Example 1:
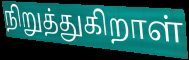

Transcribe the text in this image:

நிறுத்துகிறாள்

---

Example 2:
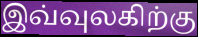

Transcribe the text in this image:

இவ்வுலகிற்கு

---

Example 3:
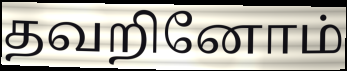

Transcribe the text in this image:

தவறினோம்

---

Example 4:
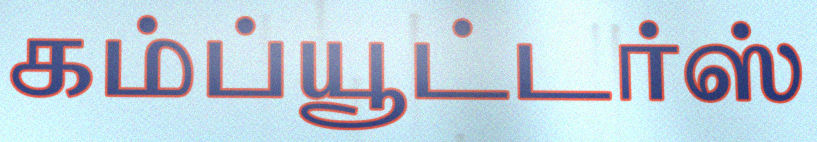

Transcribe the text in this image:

கம்ப்யூட்டர்ஸ்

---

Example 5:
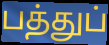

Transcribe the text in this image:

பத்துப்